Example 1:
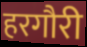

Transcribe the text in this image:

हरगौरी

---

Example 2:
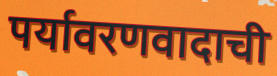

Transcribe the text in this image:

पर्यावरणवादाची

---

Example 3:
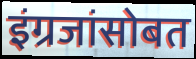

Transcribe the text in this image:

इंग्रजांसोबत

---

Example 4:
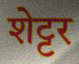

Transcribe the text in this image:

शेट्टर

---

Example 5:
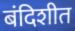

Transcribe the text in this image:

बंदिशीत